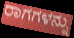
ರಾಗಗಳನ್ನು